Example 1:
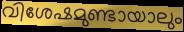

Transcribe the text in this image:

വിശേഷമുണ്ടായാലും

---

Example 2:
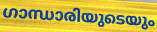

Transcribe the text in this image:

ഗാന്ധാരിയുടെയും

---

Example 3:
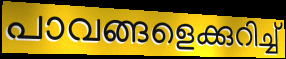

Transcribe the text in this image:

പാവങ്ങളെക്കുറിച്ച്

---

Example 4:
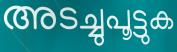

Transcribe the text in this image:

അടച്ചുപൂട്ടുക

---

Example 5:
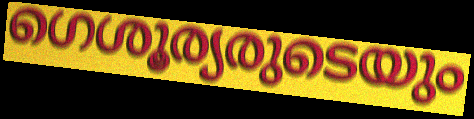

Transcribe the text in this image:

ഗെശൂര്യരുടെയും